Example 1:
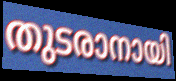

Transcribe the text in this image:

തുടരാനായി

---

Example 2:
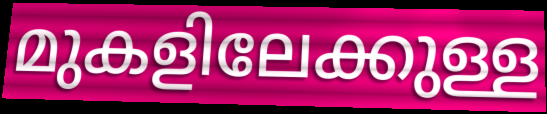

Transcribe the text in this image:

മുകളിലേക്കുള്ള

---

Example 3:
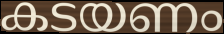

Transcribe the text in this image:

കടയണം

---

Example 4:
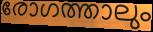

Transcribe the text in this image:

രോഗത്താലും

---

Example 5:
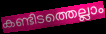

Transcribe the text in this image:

കണ്ടിടത്തെല്ലാം